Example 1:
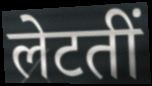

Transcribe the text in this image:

लेटतीं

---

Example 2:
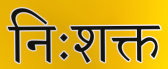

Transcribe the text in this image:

निःशक्त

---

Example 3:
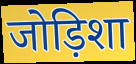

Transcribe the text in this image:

जोड़िशा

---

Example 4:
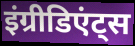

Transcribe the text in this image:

इंग्रीडिएंट्स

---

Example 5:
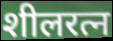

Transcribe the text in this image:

शीलरत्न